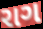
રાગ